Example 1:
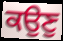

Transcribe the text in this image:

ਕਉਣੁ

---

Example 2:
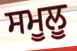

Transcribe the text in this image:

ਸਮੂਲੂ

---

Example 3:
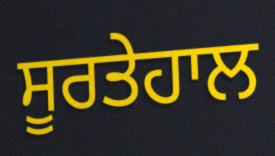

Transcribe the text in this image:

ਸੂਰਤੇਹਾਲ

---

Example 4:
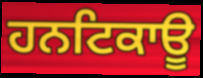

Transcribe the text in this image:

ਹਨਟਿਕਾਊ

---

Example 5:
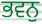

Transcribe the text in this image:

ਭਵਨੁ